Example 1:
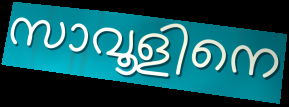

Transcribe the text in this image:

സാവൂളിനെ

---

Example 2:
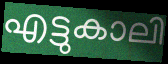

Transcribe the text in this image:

എട്ടുകാലി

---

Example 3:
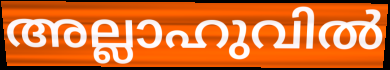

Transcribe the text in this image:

അല്ലാഹുവിൽ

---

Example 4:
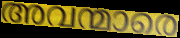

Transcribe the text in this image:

അവന്മാരെ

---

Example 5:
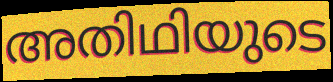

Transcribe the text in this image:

അതിഥിയുടെ